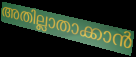
അതില്ലാതാക്കാൻ